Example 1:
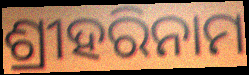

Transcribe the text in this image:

ଶ୍ରୀହରିନାମ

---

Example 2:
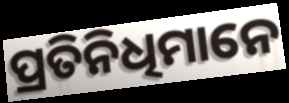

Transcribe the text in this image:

ପ୍ରତିନିଧିମାନେ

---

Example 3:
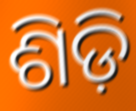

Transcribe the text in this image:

ଶିଡ଼ି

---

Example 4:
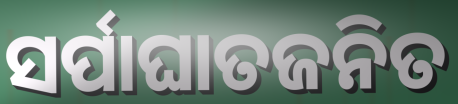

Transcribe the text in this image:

ସର୍ପାଘାତଜନିତ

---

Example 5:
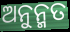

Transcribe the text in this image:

ଅନୁନ୍ମତ